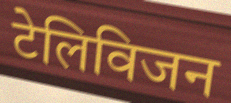
टेलिविजन